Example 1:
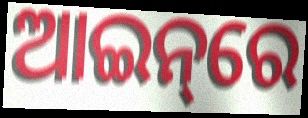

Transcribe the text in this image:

ଆଇନ୍‌ରେ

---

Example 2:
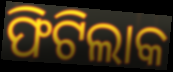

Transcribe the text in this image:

ଫିଟିଲାକ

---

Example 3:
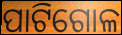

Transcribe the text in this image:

ପାଟିଗୋଳ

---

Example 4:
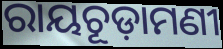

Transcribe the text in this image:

ରାୟଚୂଡ଼ାମଣୀ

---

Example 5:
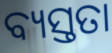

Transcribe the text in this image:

ବ୍ୟସ୍ତତା